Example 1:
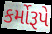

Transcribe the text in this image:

કર્મોરૂપે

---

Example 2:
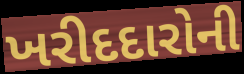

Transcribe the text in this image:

ખરીદદારોની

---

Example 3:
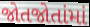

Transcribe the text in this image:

જોતજોતાંમાં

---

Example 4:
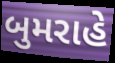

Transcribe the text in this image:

બુમરાહે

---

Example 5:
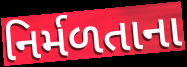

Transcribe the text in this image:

નિર્મળતાના